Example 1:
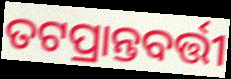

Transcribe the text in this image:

ତଟପ୍ରାନ୍ତବର୍ତ୍ତୀ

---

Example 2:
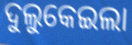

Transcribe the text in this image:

ଦୁଲୁକେଇଲା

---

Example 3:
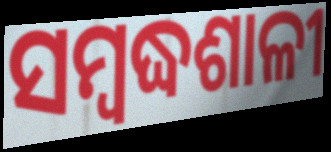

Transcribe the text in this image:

ସମ୍ବଦ୍ଧଶାଳୀ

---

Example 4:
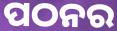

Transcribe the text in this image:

ପଠନର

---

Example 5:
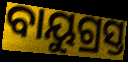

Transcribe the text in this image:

ବାୟୁଗ୍ରସ୍ତ